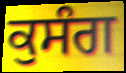
ਕੁਸੰਗ